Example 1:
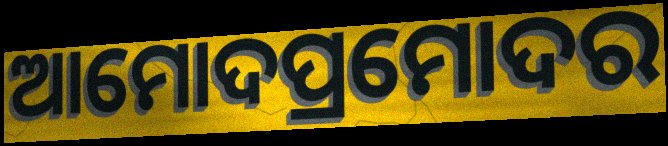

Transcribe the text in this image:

ଆମୋଦପ୍ରମୋଦର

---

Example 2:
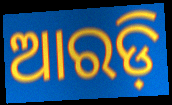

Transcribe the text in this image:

ଆରଡ଼ି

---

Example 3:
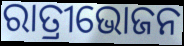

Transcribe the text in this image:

ରାତ୍ରୀଭୋଜନ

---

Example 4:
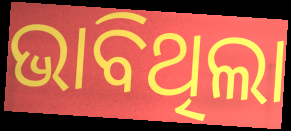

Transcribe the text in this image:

ଭାବିଥିଲା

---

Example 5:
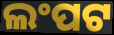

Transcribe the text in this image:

ଲଂପଟ